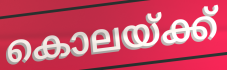
കൊലയ്ക്ക്